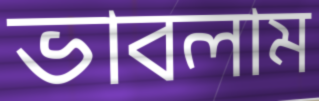
ভাবলাম